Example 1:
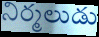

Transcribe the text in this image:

నిర్మలుడు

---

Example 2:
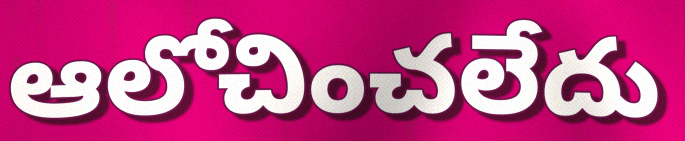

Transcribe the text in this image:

ఆలోచించలేదు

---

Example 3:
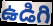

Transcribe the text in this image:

ఉడిగి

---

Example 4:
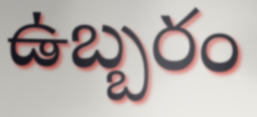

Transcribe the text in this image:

ఉబ్బరం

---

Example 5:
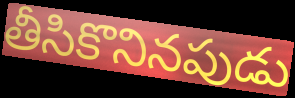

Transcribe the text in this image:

తీసికొనినపుడు